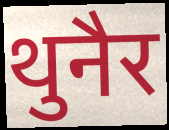
थुनैर